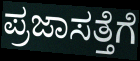
ಪ್ರಜಾಸತ್ತೆಗೆ